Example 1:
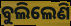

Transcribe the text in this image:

ବୁଲିଲେଣି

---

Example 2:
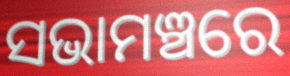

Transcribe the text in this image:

ସଭାମଞ୍ଚରେ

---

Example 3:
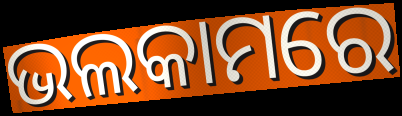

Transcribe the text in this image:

ଭଲକାମରେ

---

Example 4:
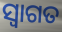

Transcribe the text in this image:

ସ୍ବାଗତ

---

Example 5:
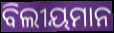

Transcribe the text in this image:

ବିଲୀୟମାନ